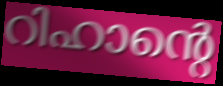
റിഹാന്റെ